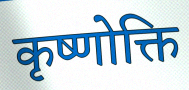
कृष्णोक्ति